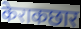
केराकछार